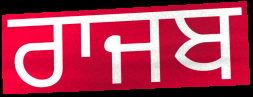
ਰਾਜਬ